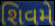
શિવમે